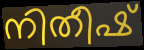
നിതീഷ്